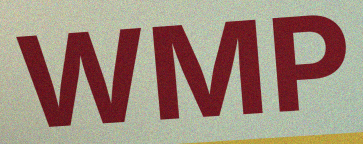
WMP